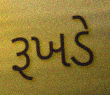
રૂખડે